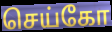
செய்கோ